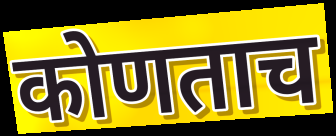
कोणताच